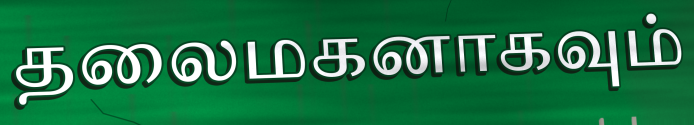
தலைமகனாகவும்